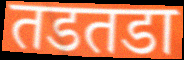
तडतडा